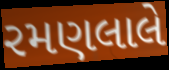
રમણલાલે